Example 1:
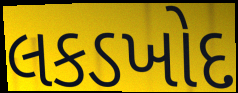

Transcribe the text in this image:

લકડખોદ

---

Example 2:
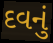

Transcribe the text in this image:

દવનું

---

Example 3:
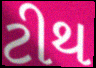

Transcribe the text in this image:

ટીથ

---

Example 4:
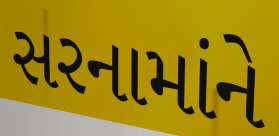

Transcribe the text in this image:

સરનામાંને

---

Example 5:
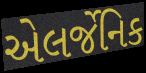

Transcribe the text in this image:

એલર્જેનિક